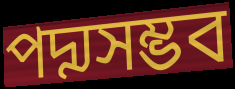
পদ্মসম্ভব